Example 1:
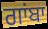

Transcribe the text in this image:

ਗਾਂਬਾ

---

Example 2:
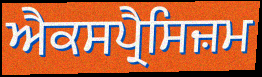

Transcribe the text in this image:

ਐਕਸਪ੍ਰੈਸਿਜ਼ਮ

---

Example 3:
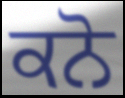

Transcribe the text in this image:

ਕਨੋ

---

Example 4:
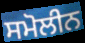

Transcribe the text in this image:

ਸਮੋਲੀਨ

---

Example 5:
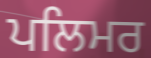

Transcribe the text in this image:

ਪਲਿਮਰ